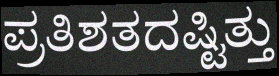
ಪ್ರತಿಶತದಷ್ಟಿತ್ತು